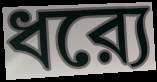
ধর‍্যে